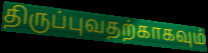
திருப்புவதற்காகவும்